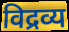
विद्रव्य